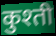
कुश्‍ती